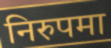
निरुपमा